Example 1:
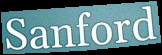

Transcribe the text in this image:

Sanford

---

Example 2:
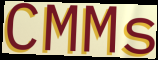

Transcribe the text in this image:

CMMs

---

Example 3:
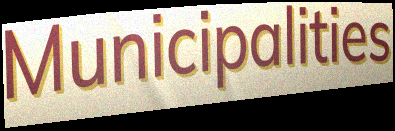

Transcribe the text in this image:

Municipalities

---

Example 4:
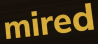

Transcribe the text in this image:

mired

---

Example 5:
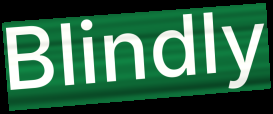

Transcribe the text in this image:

Blindly